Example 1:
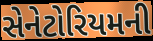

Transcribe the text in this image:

સેનેટોરિયમની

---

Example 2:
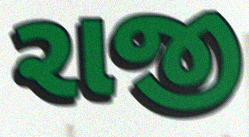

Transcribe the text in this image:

રાજી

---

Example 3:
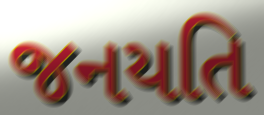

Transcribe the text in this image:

જનયતિ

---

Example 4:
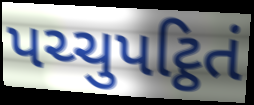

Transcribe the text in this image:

પચ્ચુપટ્ઠિતં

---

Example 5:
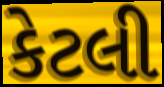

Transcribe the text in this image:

કેટલી